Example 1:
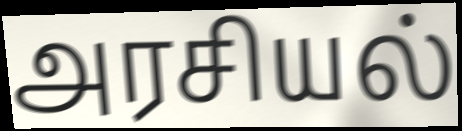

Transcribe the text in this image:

அரசியல்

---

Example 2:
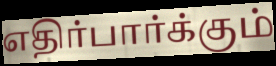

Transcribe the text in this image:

எதிர்பார்க்கும்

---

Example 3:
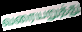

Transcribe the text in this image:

வரையறுத்து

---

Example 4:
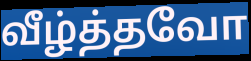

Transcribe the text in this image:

வீழ்த்தவோ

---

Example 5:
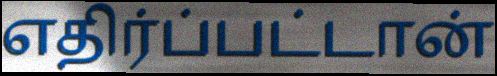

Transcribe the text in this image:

எதிர்ப்பட்டான்